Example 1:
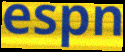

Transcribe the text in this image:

espn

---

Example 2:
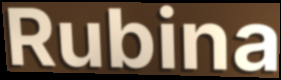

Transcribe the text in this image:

Rubina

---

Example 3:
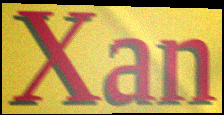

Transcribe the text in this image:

Xan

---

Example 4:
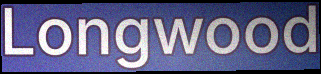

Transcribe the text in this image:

Longwood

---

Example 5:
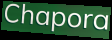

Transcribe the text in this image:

Chapora